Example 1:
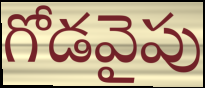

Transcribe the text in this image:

గోడవైపు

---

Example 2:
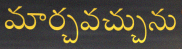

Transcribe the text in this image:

మార్చవచ్చును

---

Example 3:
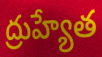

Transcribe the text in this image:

ద్రుహ్యేత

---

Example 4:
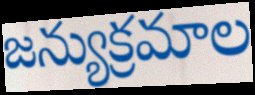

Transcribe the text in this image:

జన్యుక్రమాల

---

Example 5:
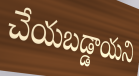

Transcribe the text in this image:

చేయబడ్డాయని